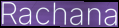
Rachana